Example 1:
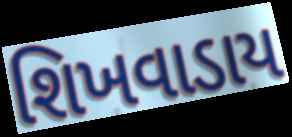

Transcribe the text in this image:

શિખવાડાય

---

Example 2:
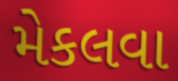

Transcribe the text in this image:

મેકલવા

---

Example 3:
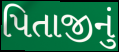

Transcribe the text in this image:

પિતાજીનું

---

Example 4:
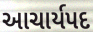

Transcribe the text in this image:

આચાર્યપદ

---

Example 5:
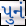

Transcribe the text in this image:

પુનં